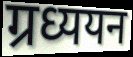
ग्रध्ययन